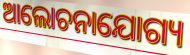
ଆଲୋଚନାଯୋଗ୍ୟ